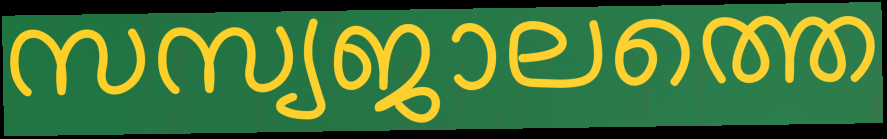
സസ്യജാലത്തെ